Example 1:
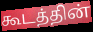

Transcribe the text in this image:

கூடத்தின்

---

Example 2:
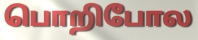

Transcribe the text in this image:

பொறிபோல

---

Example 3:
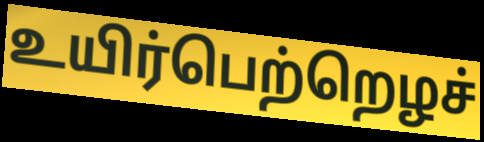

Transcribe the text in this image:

உயிர்பெற்றெழச்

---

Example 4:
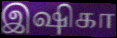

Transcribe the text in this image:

இஷிகா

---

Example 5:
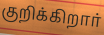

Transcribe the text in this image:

குறிக்கிறார்